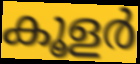
കൂളർ